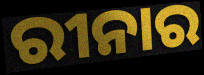
ରୀନାର